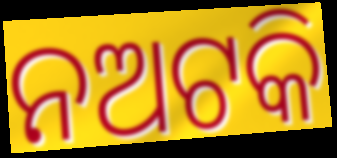
ନଅଟକି